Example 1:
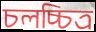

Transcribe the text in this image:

চলচ্চিত্র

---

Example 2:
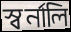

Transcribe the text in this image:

স্বর্নালি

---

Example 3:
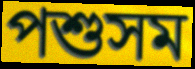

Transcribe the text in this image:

পশুসম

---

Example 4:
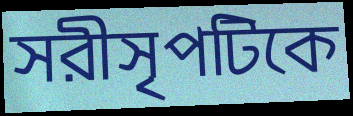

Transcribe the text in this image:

সরীসৃপটিকে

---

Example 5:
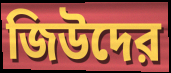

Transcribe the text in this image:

জিউদের